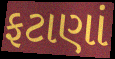
ફટાણાં